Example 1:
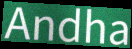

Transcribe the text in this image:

Andha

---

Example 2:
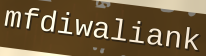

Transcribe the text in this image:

mfdiwaliank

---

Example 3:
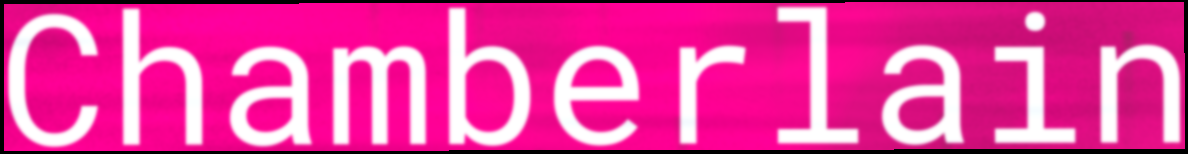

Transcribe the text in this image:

Chamberlain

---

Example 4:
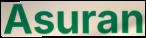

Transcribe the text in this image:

Asuran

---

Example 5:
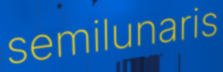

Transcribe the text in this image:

semilunaris